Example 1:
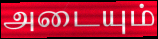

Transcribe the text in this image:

அடையும்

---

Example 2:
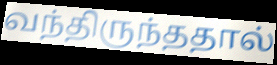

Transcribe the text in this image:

வந்திருந்ததால்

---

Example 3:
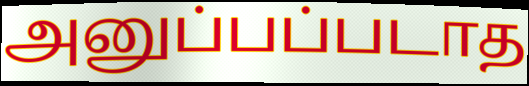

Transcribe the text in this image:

அனுப்பப்படாத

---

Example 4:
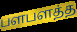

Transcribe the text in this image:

பளபளத்த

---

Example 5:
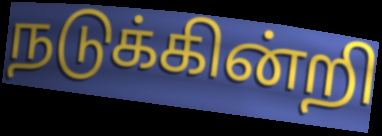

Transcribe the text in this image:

நடுக்கின்றி